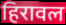
हिरावल